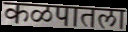
कळपातला